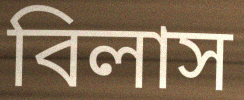
বিলাস